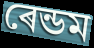
ৰেন্ডম